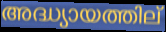
അദ്ധ്യായത്തില്